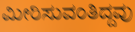
ಮೀರಿಸುವಂತಿದ್ದವು